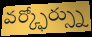
వర్క్ఫోర్స్ను